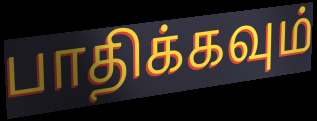
பாதிக்கவும்